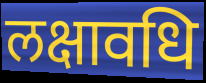
लक्षावधि